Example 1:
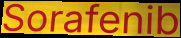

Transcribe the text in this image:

Sorafenib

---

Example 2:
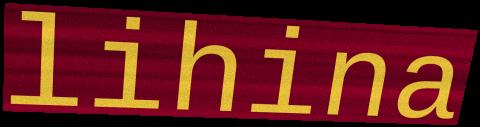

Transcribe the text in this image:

lihina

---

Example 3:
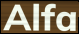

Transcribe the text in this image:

Alfa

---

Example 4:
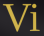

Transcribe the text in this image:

Vi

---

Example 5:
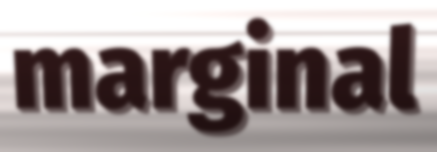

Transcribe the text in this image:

marginal